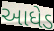
આધેડ